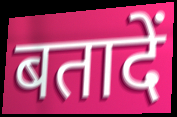
बतादें